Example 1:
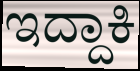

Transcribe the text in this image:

ಇದ್ದಾಕಿ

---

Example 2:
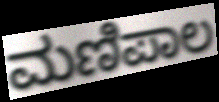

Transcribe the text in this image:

ಮಣಿಪಾಲ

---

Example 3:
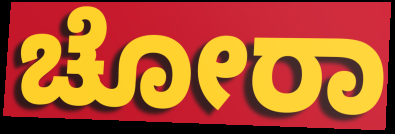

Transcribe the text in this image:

ಚೋರಾ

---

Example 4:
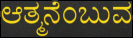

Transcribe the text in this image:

ಆತ್ಮನೆಂಬುವ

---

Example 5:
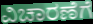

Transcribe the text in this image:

ವಿಚಾರಣೆಗೆ